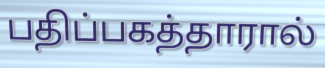
பதிப்பகத்தாரால்